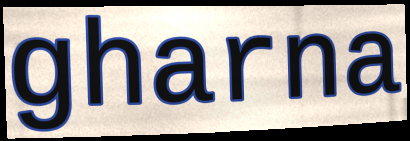
gharna